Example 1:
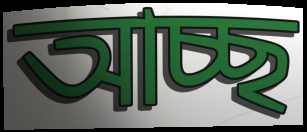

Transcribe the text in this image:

আচ্ছ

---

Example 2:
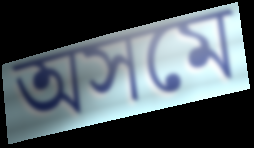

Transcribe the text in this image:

অসমে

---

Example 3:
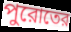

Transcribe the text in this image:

পুরোতের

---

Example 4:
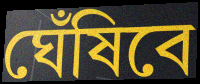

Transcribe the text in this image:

ঘেঁষিবে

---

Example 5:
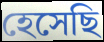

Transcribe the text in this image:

হেসেছি